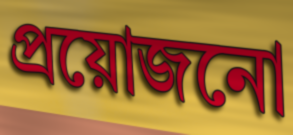
প্ৰয়োজনো